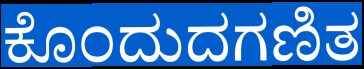
ಕೊಂದುದಗಣಿತ